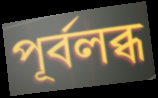
পূৰ্বলব্ধ